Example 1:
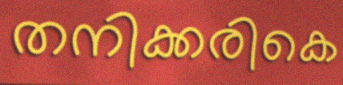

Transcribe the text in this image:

തനിക്കരികെ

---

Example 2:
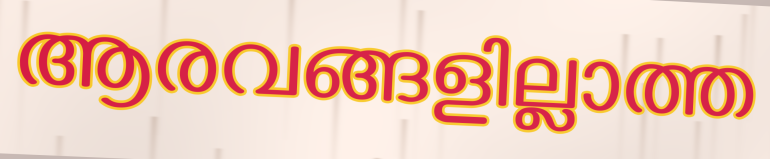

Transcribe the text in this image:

ആരവങ്ങളില്ലാത്ത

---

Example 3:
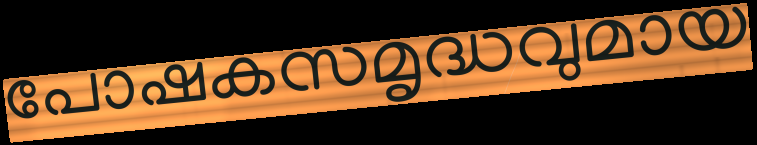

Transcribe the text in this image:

പോഷകസമൃദ്ധവുമായ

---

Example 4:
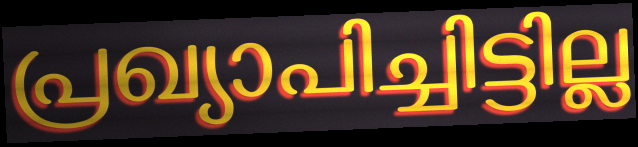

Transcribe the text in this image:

പ്രഖ്യാപിച്ചിട്ടില്ല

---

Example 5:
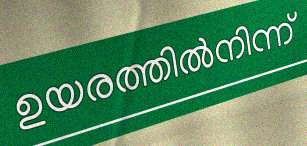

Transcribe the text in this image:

ഉയരത്തിൽനിന്ന്